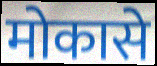
मोकासे